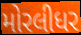
મોરલીધર